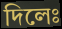
দিলেঃ